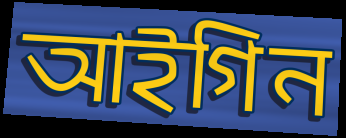
আইগিন